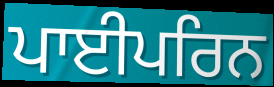
ਪਾਈਪਰਿਨ